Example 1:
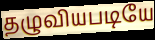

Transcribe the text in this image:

தழுவியபடியே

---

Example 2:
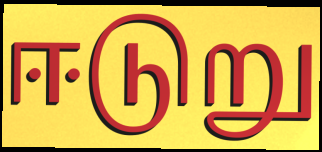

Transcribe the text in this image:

ஈடுறு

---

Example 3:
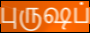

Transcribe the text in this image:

புருஷப்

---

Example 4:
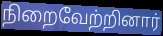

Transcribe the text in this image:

நிறைவேற்றினார்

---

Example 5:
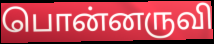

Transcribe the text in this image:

பொன்னருவி